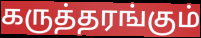
கருத்தரங்கும்